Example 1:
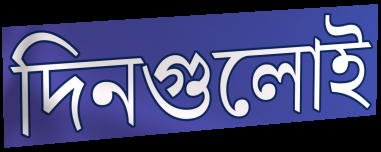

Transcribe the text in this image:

দিনগুলোই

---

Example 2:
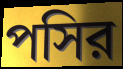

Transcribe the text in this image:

পসির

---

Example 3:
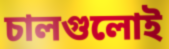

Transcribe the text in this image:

চালগুলোই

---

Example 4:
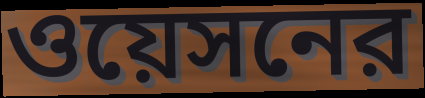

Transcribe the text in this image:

ওয়েসনের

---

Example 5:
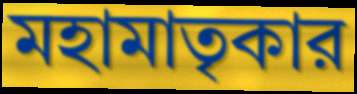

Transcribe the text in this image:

মহামাতৃকার